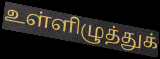
உள்ளிழுத்துக்